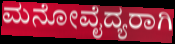
ಮನೋವೈದ್ಯರಾಗಿ